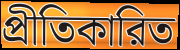
প্রীতিকারিত